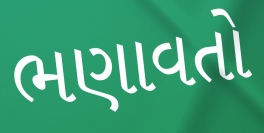
ભણાવતો